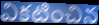
వికటించిన